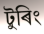
টুৰিং